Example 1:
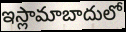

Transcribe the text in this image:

ఇస్లామాబాదులో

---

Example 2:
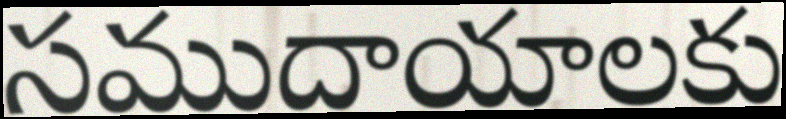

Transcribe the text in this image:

సముదాయాలకు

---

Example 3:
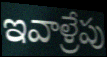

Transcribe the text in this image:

ఇవాళ్రేపు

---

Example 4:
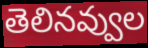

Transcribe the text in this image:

తెలినవ్వుల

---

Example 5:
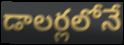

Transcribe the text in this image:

డాలర్లలోనే